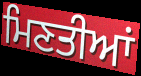
ਮਿਣਤੀਆਂ